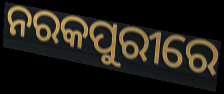
ନରକପୁରୀରେ